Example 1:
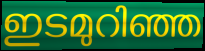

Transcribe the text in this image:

ഇടമുറിഞ്ഞ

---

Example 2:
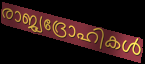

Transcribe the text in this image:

രാജ്യദ്രോഹികൾ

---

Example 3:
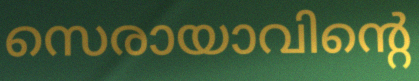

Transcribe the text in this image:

സെരായാവിന്റെ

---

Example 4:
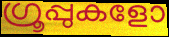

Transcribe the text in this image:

ഗ്രൂപ്പുകളോ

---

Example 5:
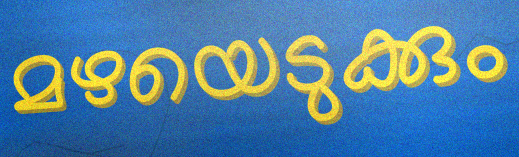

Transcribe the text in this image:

മഴയെടുക്കും